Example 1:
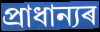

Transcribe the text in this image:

প্ৰাধান্যৰ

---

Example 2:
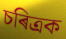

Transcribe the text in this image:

চৰিত্ৰক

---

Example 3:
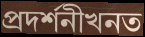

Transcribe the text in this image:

প্ৰদৰ্শনীখনত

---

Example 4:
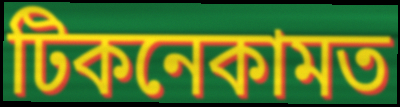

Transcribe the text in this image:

টিকনেকামত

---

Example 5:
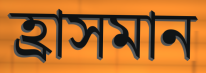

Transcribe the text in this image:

হ্ৰাসমান